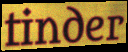
tinder